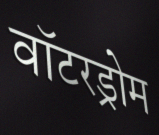
वॉटरड्रोम